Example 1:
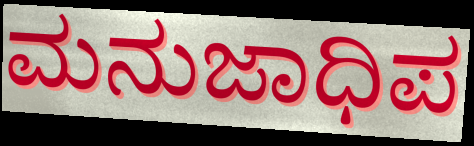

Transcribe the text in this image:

ಮನುಜಾಧಿಪ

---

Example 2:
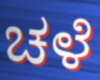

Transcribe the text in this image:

ಚಳೆ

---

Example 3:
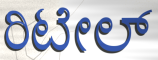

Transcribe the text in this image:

ರಿಟೇಲ್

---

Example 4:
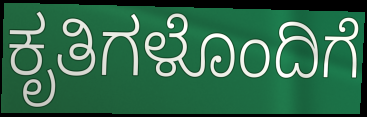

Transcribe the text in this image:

ಕೃತಿಗಳೊಂದಿಗೆ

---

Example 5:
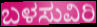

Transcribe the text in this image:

ಬಳಸುವಿರಿ